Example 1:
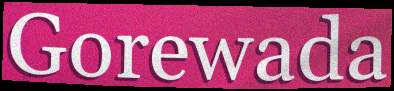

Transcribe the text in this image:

Gorewada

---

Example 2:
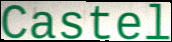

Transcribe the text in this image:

Castel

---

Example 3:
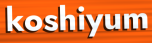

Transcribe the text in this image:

koshiyum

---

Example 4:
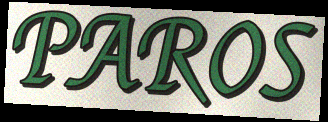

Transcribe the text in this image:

PAROS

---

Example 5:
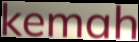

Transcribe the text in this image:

kemah